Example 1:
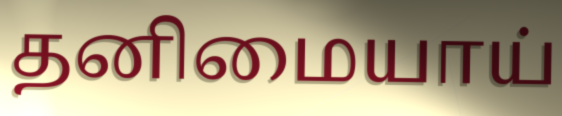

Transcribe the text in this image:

தனிமையாய்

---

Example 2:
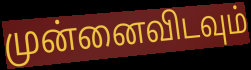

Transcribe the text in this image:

முன்னைவிடவும்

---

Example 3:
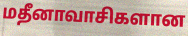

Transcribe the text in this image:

மதீனாவாசிகளான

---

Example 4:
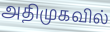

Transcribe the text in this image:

அதிமுகவில்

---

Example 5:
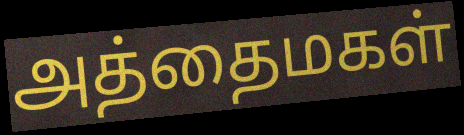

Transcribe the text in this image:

அத்தைமகள்